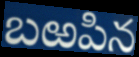
బఱపిన